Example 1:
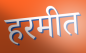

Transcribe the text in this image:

हरमीत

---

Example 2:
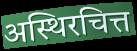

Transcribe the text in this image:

अस्थिरचित्त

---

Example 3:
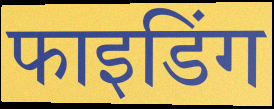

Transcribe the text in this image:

फाइडिंग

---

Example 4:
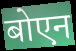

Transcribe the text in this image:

बोएन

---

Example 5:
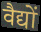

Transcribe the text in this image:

वैद्यों